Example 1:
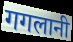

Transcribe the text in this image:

गगलानी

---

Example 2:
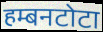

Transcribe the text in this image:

हम्बनटोटा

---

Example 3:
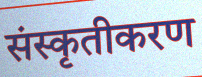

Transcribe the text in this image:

संस्कृतीकरण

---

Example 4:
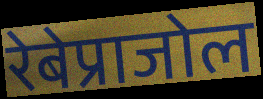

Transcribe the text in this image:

रेबेप्राजोल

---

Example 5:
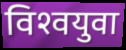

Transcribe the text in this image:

विश्वयुवा